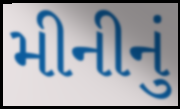
મીનીનું